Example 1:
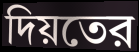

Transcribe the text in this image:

দিয়তের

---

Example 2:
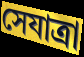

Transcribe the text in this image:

সেযাত্রা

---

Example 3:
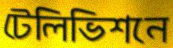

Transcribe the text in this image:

টেলিভিশনে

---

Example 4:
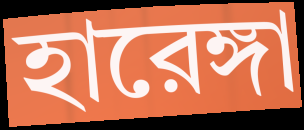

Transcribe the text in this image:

হারেঙ্গা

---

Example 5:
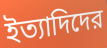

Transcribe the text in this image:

ইত্যাদিদের